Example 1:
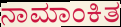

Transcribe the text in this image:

ನಾಮಾಂಕಿತ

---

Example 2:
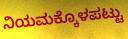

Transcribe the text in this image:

ನಿಯಮಕ್ಕೊಳಪಟ್ಟು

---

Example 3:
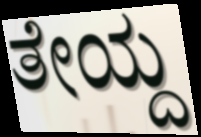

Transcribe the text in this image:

ತೇಯ್ದ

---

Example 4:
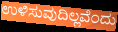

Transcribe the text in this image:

ಉಳಿಸುವುದಿಲ್ಲವೆಂದು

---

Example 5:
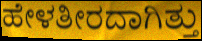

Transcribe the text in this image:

ಹೇಳತೀರದಾಗಿತ್ತು